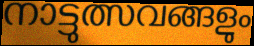
നാട്ടുത്സവങ്ങളും